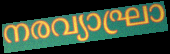
നരവ്യാഘ്രാ